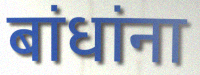
बांधांना